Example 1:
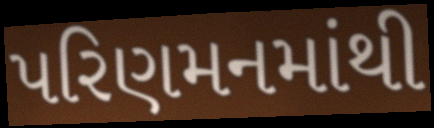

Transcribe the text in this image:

પરિણમનમાંથી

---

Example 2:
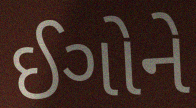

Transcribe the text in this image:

ઈગોને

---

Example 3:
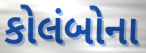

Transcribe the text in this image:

કોલંબોના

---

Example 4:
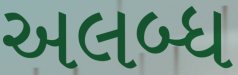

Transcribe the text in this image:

અલબ્ધ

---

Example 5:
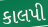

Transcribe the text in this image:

કાલપી